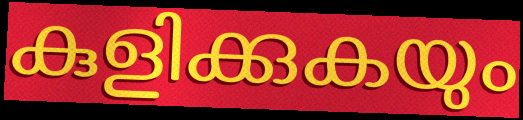
കുളിക്കുകയും